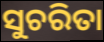
ସୁଚରିତା